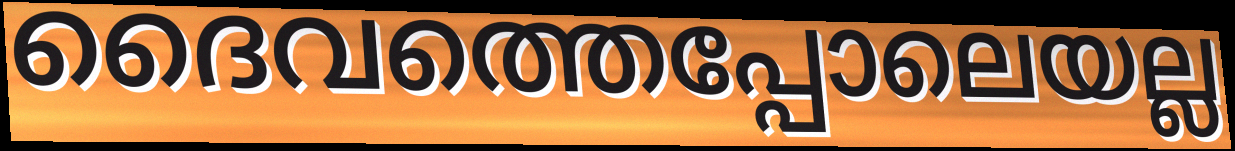
ദൈവത്തെപ്പോലെയല്ല